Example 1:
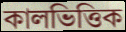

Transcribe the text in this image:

কালভিত্তিক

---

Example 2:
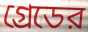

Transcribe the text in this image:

গ্রেডের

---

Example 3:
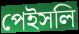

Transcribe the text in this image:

পেইসলি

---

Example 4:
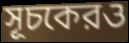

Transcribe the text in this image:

সূচকেরও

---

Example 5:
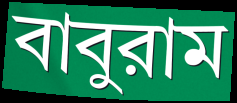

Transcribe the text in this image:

বাবুরাম